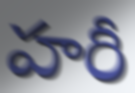
హరీ